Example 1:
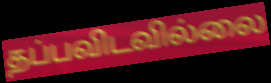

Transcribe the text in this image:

தப்பவிடவில்லை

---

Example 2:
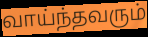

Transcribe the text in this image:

வாய்ந்தவரும்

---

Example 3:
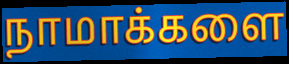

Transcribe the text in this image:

நாமாக்களை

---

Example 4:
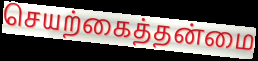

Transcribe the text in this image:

செயற்கைத்தன்மை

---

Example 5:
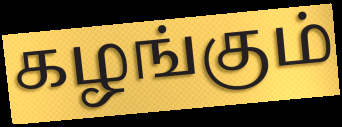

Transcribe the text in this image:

கழங்கும்